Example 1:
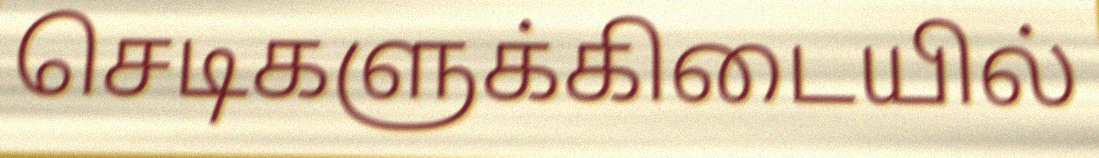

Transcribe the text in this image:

செடிகளுக்கிடையில்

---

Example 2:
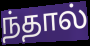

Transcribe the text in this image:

ந்தால்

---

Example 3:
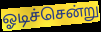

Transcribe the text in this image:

ஓடிச்சென்று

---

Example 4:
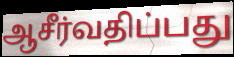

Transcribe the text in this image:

ஆசீர்வதிப்பது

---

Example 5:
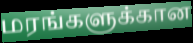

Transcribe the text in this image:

மரங்களுக்கான